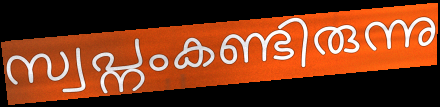
സ്വപ്നംകണ്ടിരുന്നു